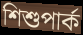
শিশুপার্ক